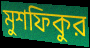
মুশফিকুর